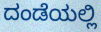
ದಂಡೆಯಲ್ಲಿ